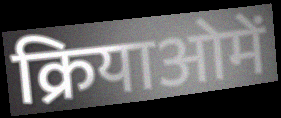
क्रियाओमें